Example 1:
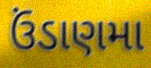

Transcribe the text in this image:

ઉંડાણમા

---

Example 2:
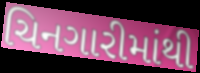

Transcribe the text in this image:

ચિનગારીમાંથી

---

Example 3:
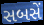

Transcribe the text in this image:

સબસેં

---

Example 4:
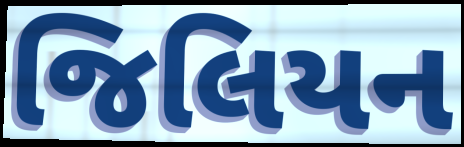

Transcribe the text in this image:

જિલિયન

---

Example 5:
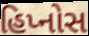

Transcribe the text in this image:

હિપ્નોસ